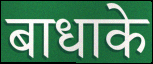
बाधाके